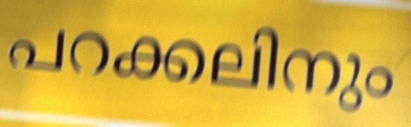
പറക്കലിനും